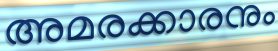
അമരക്കാരനും